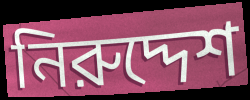
নিরুদ্দেশ